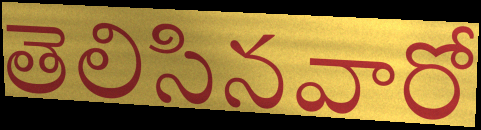
తెలిసినవారో